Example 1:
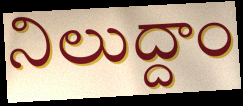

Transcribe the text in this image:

నిలుద్దాం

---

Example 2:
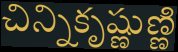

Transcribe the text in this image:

చిన్నికృష్ణుణ్ణి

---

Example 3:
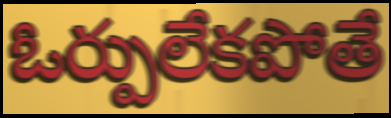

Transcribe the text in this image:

ఓర్పులేకపోతే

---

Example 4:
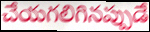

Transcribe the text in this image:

చేయగలిగినప్పుడే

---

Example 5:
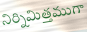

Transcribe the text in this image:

నిర్నిమిత్తముగా